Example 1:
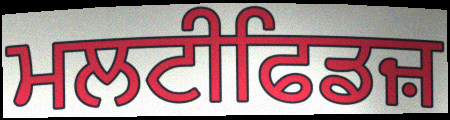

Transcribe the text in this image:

ਮਲਟੀਫਿਡਜ਼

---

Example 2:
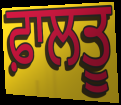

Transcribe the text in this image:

ਫ਼ਾਲਤੂ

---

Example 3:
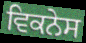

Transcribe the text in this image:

ਵਿਕਨੇਸ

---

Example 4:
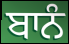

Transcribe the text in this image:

ਬਾਨੰ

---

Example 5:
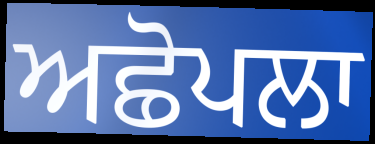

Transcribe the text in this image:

ਅਛੋਪਲਾ